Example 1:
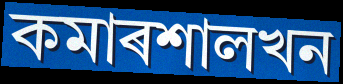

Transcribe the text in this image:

কমাৰশালখন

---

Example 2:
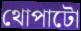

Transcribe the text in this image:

থোপাটো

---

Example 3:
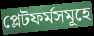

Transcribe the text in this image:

প্লেটফৰ্মসমূহে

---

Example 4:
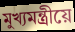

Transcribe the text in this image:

মুখ্যমন্ত্ৰীয়ে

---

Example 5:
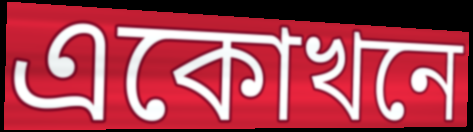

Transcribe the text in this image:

একোখনে